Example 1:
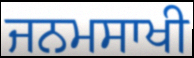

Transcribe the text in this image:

ਜਨਮਸਾਖੀ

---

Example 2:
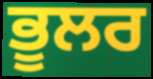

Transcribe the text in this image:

ਭੂਲਰ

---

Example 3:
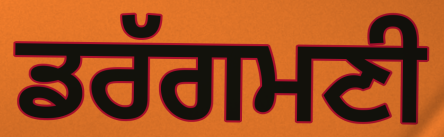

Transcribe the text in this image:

ਡਰੱਗਮਣੀ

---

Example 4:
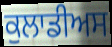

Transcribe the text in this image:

ਕੁਲਾਡੀਅਸ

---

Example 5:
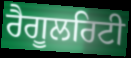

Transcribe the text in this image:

ਰੈਗੂਲਰਿਟੀ